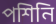
পশিনি